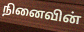
நினைவின்